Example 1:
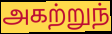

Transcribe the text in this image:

அகற்றுந்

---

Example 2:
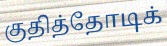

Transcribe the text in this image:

குதித்தோடிக்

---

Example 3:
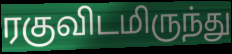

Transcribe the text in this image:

ரகுவிடமிருந்து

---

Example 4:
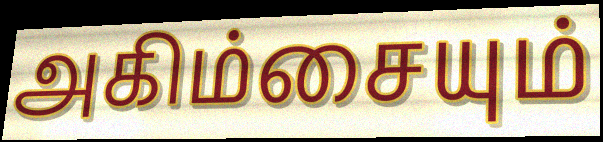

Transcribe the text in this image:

அகிம்சையும்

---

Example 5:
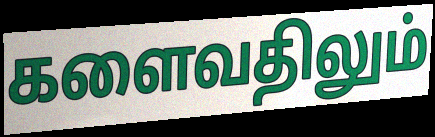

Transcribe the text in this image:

களைவதிலும்